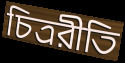
চিত্ররীতি